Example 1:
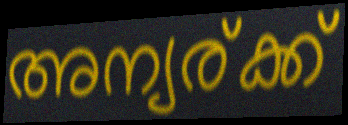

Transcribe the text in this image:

അന്യര്ക്ക്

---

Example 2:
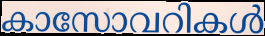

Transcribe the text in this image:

കാസോവറികൾ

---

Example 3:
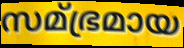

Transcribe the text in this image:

സമ്ഭ്രമായ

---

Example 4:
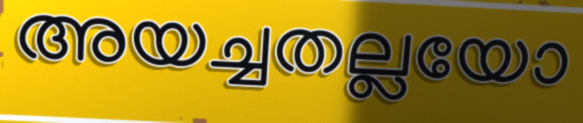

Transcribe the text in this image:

അയച്ചതല്ലയോ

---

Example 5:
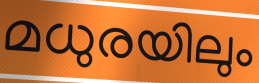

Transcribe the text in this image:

മധുരയിലും